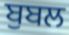
ਬੁਬਲ